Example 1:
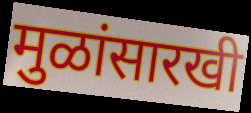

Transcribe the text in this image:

मुळांसारखी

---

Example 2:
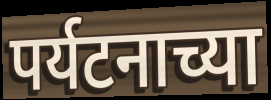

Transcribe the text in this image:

पर्यटनाच्या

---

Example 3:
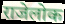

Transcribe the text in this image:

राजेलोक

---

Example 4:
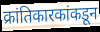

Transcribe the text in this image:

क्रांतिकारकांकडून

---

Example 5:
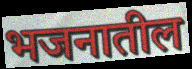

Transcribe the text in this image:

भजनातील